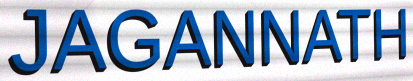
JAGANNATH